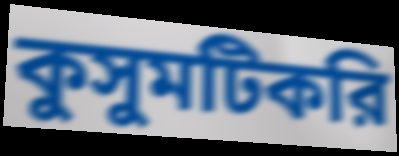
কুসুমটিকরি